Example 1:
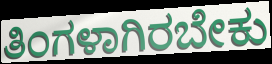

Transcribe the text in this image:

ತಿಂಗಳಾಗಿರಬೇಕು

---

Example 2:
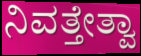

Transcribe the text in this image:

ನಿವತ್ತೇತ್ವಾ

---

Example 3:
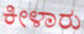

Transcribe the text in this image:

ಕೀಳಾರು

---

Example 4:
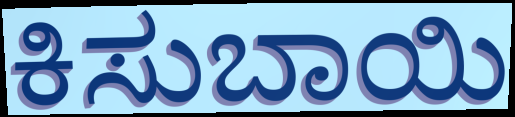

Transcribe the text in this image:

ಕಿಸುಬಾಯಿ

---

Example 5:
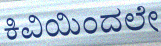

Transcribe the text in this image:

ಕಿವಿಯಿಂದಲೇ